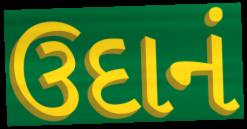
ઉદાનં